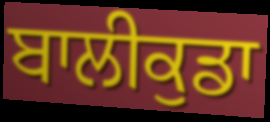
ਬਾਲੀਕੁਡਾ